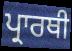
ਪ੍ਰਾਰਥੀ